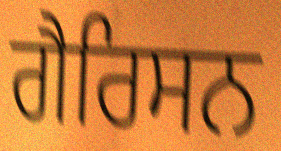
ਗੈਰਿਸਨ